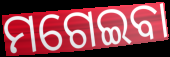
ମଗେଇବା